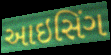
આઇસિંગ